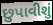
છુપાવીશું